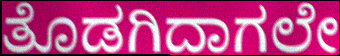
ತೊಡಗಿದಾಗಲೇ